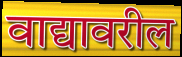
वाद्यावरील